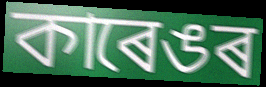
কাৰেঙৰ